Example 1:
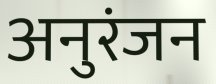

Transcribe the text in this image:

अनुरंजन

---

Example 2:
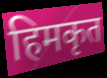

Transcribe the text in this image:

हिमकृत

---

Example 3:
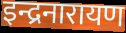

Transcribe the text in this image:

इन्द्रनारायण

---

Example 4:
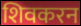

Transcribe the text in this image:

शिवकरन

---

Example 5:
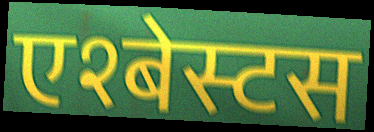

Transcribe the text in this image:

एश्बेस्टस